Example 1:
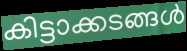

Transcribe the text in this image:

കിട്ടാക്കടങ്ങൾ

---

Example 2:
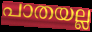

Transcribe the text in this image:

പാതയല്ല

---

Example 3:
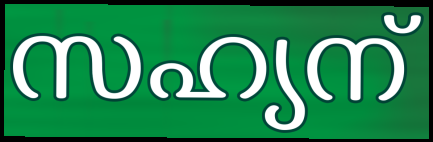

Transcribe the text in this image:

സഹ്യന്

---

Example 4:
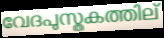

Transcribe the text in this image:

വേദപുസ്തകത്തില്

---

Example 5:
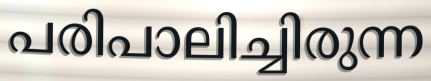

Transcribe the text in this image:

പരിപാലിച്ചിരുന്ന